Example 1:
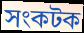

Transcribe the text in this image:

সংকটক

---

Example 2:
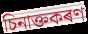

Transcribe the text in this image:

চিনাক্তকৰণ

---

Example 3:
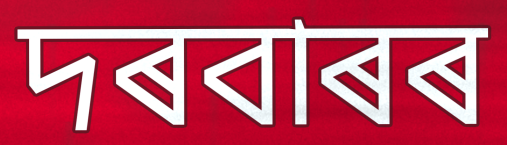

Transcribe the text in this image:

দৰবাৰৰ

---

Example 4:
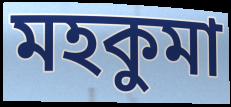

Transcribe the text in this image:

মহকুমা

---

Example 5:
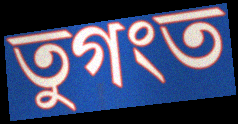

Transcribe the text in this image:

তুগংত